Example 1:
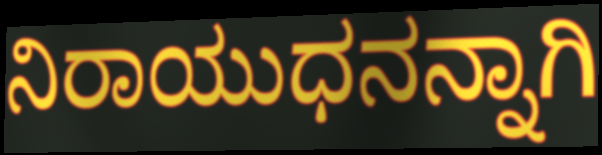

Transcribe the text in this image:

ನಿರಾಯುಧನನ್ನಾಗಿ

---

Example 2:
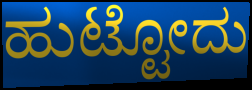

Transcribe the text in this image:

ಹುಟ್ಟೋದು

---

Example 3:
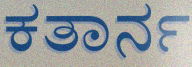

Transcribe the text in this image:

ಕತಾರ್ನ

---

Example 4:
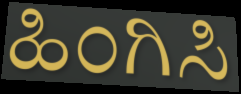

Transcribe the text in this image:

ಹಿಂಗಿಸಿ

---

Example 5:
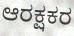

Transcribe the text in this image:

ಆರಕ್ಷಕರ